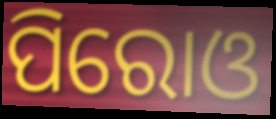
ପିରୋଓ